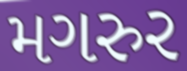
મગરુર